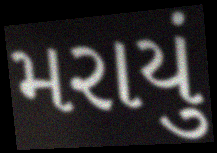
મરાયું